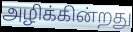
அழிக்கின்றது